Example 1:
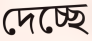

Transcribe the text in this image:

দেচ্ছে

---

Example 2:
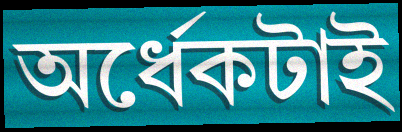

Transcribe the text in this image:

অর্ধেকটাই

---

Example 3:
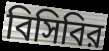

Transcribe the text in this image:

বিসিবির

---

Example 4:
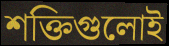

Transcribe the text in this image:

শক্তিগুলোই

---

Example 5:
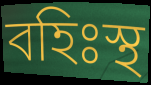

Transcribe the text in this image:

বহিঃস্থ